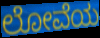
ಲೋವೆಯ